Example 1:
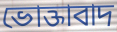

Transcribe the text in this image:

ভোক্তাবাদ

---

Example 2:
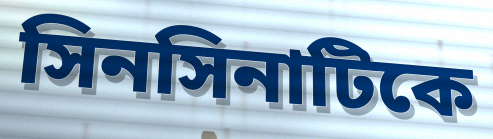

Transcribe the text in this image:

সিনসিনাটিকে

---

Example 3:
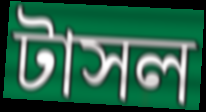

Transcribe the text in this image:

টাসল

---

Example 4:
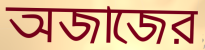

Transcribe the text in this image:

অজাজের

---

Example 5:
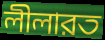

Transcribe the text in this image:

লীলারত